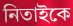
নিতাইকে